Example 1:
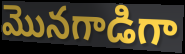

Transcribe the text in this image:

మొనగాడిగా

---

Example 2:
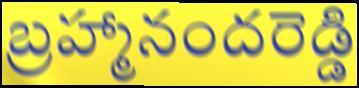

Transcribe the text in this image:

బ్రహ్మానందరెడ్డి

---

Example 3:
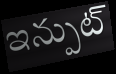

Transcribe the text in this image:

ఇన్పుట్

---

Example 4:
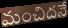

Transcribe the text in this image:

మంచిదనే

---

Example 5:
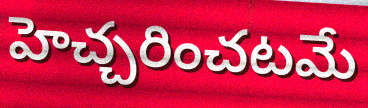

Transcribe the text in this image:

హెచ్చరించటమే